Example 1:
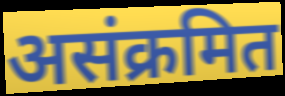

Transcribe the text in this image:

असंक्रमित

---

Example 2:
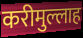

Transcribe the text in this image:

करीमुल्लाह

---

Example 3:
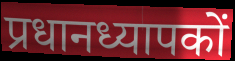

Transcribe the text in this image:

प्रधानध्यापकों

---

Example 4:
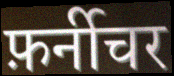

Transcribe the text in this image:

फ़र्नीचर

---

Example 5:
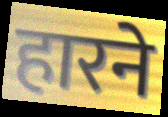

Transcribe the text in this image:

हारने